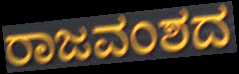
ರಾಜವಂಶದ